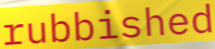
rubbished